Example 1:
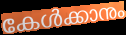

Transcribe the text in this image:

കേൾക്കാനും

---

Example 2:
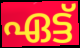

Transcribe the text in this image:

ഏട്ട്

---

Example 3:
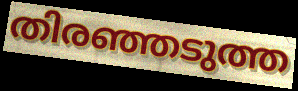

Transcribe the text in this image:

തിരഞ്ഞടുത്ത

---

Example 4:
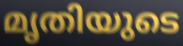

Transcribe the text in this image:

മൃതിയുടെ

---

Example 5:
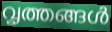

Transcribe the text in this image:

വൃത്തങ്ങൾ